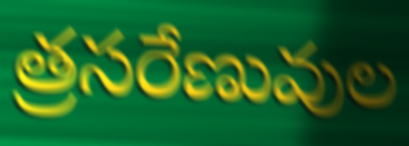
త్రసరేణువుల